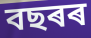
বছৰৰ